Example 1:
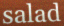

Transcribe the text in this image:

salad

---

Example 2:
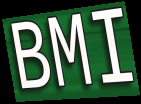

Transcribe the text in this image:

BMI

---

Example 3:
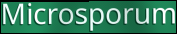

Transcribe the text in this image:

Microsporum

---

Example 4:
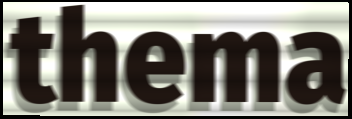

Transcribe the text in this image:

thema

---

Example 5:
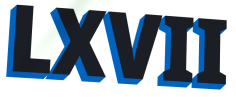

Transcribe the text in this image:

LXVII